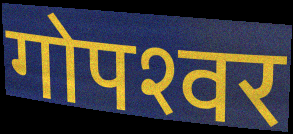
गोपश्वर